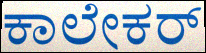
ಕಾಲೇಕರ್